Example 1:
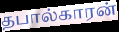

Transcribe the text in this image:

தபால்காரன்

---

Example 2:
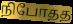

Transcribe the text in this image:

நிபோதத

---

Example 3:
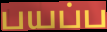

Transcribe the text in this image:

பயப்ப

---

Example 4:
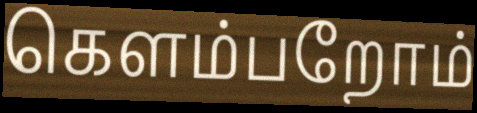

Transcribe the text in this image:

கெளம்பறோம்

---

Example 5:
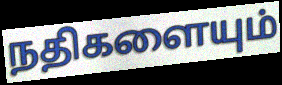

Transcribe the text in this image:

நதிகளையும்